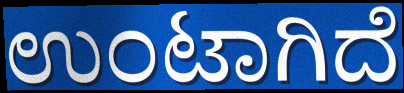
ಉಂಟಾಗಿದೆ